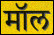
मॉल